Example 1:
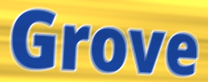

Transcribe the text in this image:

Grove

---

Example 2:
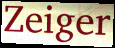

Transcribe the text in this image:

Zeiger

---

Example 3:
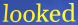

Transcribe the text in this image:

looked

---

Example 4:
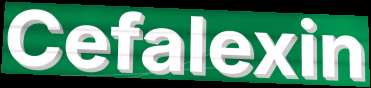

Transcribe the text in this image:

Cefalexin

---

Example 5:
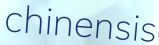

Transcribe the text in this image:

chinensis